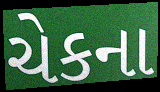
ચેકના